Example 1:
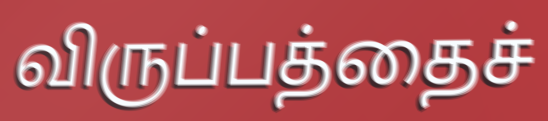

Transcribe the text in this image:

விருப்பத்தைச்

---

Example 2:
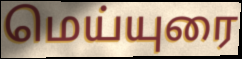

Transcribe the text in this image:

மெய்யுரை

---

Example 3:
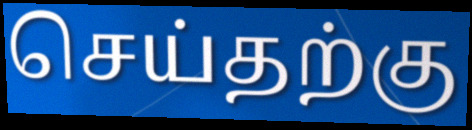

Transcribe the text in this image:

செய்தற்கு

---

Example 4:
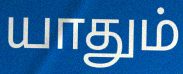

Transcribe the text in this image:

யாதும்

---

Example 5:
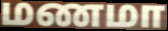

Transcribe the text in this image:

மணமா